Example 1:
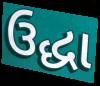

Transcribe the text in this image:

ઉદ્ધા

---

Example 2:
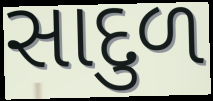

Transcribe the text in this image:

સાદુળ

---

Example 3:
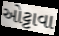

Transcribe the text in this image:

ઓટ્ટાવા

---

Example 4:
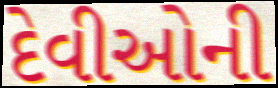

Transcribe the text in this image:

દેવીઓની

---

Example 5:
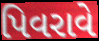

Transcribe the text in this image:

પિવરાવે